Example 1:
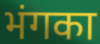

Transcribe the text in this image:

भंगका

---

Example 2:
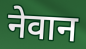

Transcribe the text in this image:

नेवान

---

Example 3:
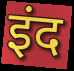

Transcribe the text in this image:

इंद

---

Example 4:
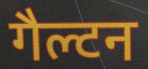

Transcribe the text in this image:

गैल्टन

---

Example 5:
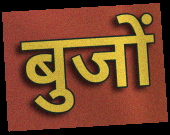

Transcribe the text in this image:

बुजों